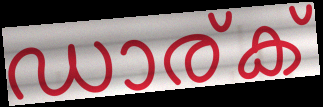
ഡാര്ക്